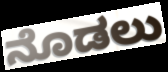
ನೊಡಲು